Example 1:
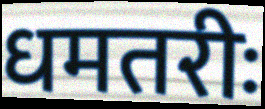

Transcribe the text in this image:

धमतरीः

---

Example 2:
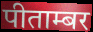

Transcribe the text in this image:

पीताम्बर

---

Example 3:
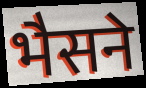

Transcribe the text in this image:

भैसने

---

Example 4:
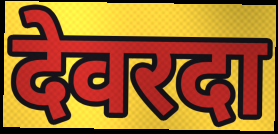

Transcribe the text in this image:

देवरदा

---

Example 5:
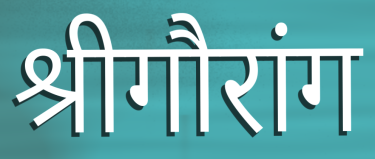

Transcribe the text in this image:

श्रीगौरांग